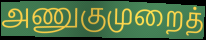
அணுகுமுறைத்